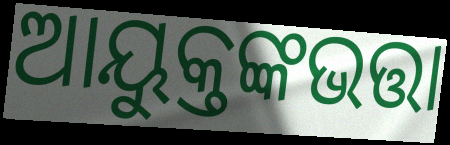
ଆୟୁକ୍ତଙ୍କଭତ୍ତା